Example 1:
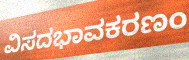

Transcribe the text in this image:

ವಿಸದಭಾವಕರಣಂ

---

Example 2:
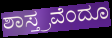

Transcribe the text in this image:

ಶಾಸ್ತ್ರವೆಂದೂ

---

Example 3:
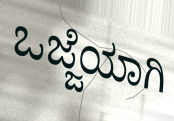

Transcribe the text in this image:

ಒಜ್ಜೆಯಾಗಿ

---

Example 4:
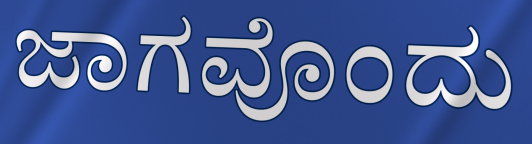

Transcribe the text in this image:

ಜಾಗವೊಂದು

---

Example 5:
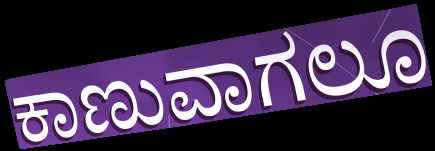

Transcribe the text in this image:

ಕಾಣುವಾಗಲೂ